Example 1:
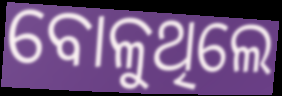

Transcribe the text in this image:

ବୋଳୁଥିଲେ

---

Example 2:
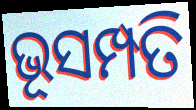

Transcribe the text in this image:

ଭୂସମ୍ପତି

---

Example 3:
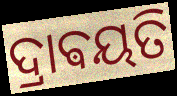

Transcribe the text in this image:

ଦ୍ରାଵୟତି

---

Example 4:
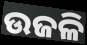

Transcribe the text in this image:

ଉଜଳି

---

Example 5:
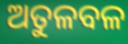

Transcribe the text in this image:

ଅତୁଳବଳ